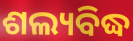
ଶଲ୍ୟବିଦ୍ଧ